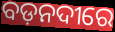
ବଡ଼ନଦୀରେ